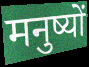
मनुष्यों